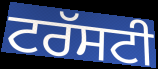
ਟਰੱਸਟੀ